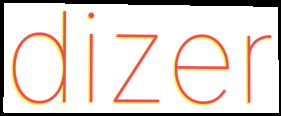
dizer